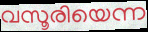
വസൂരിയെന്ന